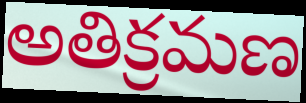
అతిక్రమణ